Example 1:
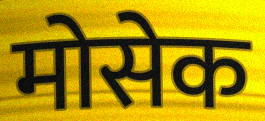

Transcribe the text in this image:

मोसेक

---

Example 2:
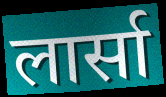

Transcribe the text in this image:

लार्सा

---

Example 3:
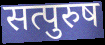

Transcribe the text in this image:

सत्पुरुष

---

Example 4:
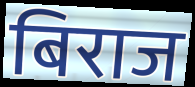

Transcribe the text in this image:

बिराज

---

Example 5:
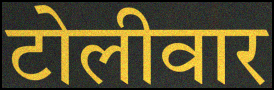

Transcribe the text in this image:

टोलीवार